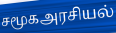
சமூகஅரசியல்